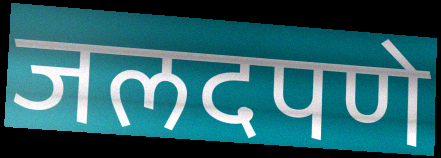
जलदपणे